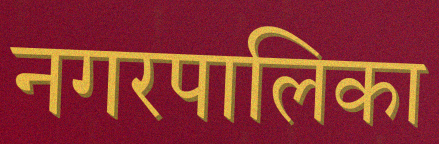
नगरपालिका